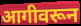
आगीवरून